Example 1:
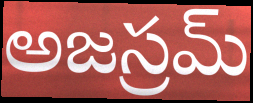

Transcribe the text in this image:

అజస్రమ్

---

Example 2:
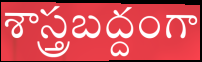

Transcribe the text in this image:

శాస్త్రబద్దంగా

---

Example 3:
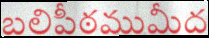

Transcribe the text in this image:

బలిపీఠముమీద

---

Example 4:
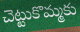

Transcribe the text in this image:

చెట్టుకొమ్మకు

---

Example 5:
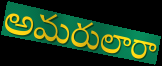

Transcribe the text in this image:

అమరులారా